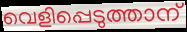
വെളിപ്പെടുത്താന്